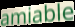
amiable